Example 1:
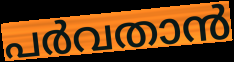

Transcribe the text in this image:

പർവതാൻ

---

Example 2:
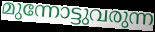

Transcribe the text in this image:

മുന്നോട്ടുവരുന്ന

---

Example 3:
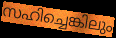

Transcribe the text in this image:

സഹിച്ചെങ്കിലും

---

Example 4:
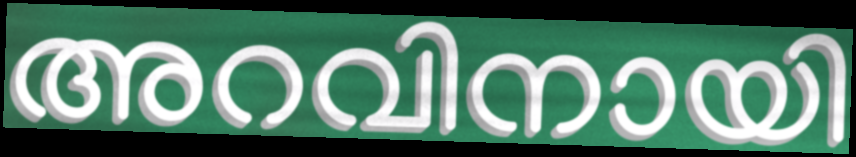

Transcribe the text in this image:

അറവിനായി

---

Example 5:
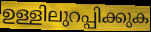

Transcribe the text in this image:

ഉള്ളിലുറപ്പിക്കുക